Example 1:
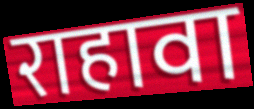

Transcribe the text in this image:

राहावा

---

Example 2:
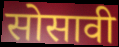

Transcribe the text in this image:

सोसावी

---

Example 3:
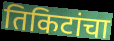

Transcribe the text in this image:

तिकिटांचा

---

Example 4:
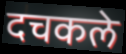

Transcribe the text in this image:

दचकले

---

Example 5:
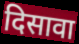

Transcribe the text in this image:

दिसावा